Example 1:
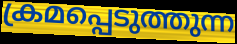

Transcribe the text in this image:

ക്രമപ്പെടുത്തുന്ന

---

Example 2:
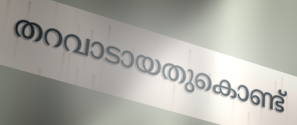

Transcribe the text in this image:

തറവാടായതുകൊണ്ട്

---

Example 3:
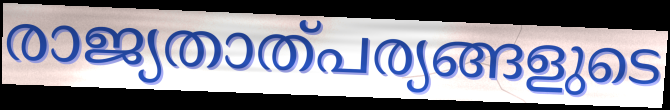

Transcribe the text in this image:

രാജ്യതാത്പര്യങ്ങളുടെ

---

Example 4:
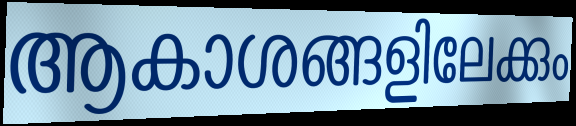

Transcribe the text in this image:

ആകാശങ്ങളിലേക്കും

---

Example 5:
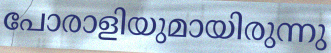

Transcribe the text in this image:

പോരാളിയുമായിരുന്നു